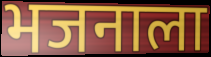
भजनाला